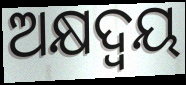
ଅକ୍ଷଦ୍ବୟ